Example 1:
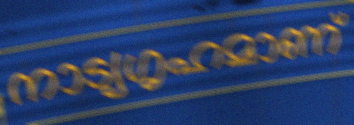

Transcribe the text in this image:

നാട്യഗൃഹമാണ്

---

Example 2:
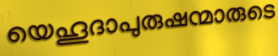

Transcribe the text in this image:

യെഹൂദാപുരുഷന്മാരുടെ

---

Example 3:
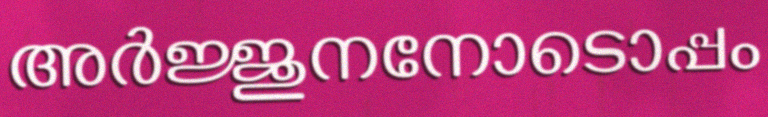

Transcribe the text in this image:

അർജ്ജുനനോടൊപ്പം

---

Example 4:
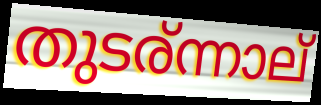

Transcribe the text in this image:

തുടര്ന്നാല്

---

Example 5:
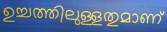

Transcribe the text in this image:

ഉച്ചത്തിലുള്ളതുമാണ്